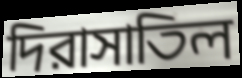
দিরাসাতিল